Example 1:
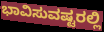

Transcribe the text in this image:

ಭಾವಿಸುವಷ್ಟರಲ್ಲಿ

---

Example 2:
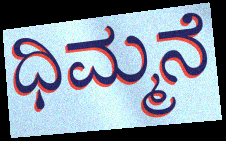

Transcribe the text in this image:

ಧಿಮ್ಮನೆ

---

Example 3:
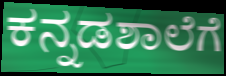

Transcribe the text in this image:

ಕನ್ನಡಶಾಲೆಗೆ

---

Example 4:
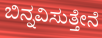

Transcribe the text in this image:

ಬಿನ್ನವಿಸುತ್ತೇನೆ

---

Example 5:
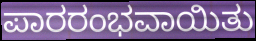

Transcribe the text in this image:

ಪಾರರಂಭವಾಯಿತು